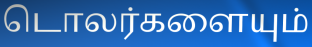
டொலர்களையும்